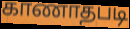
காணாதபடி